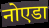
नोएडा